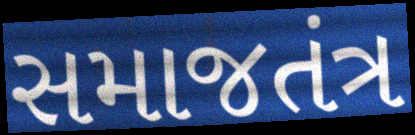
સમાજતંત્ર